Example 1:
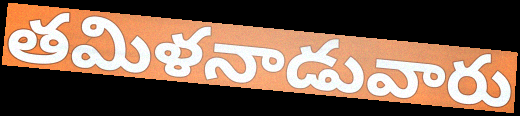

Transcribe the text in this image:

తమిళనాడువారు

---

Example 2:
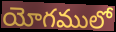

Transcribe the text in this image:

యోగములో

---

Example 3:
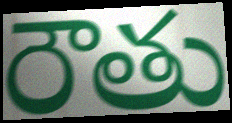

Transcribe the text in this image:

రౌతు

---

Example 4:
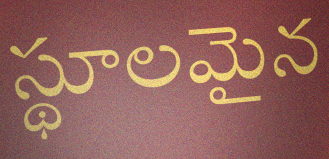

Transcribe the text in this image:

స్థూలమైన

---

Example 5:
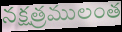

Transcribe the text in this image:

నక్షత్రములంత